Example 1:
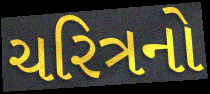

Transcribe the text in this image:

ચરિત્રનો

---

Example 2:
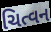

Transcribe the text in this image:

ચિત્વન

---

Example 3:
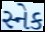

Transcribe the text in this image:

સ્નેક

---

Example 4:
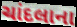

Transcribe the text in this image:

ચાંદલાના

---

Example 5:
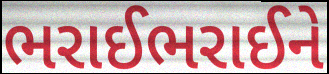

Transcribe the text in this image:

ભરાઈભરાઈને